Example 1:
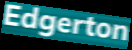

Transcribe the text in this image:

Edgerton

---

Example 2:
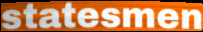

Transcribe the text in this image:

statesmen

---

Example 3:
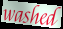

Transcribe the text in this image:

washed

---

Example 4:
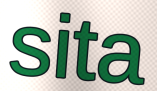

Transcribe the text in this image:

sita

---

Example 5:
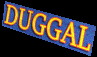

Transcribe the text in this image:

DUGGAL